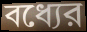
বধ্যের